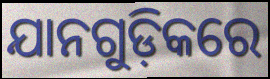
ଯାନଗୁଡ଼ିକରେ